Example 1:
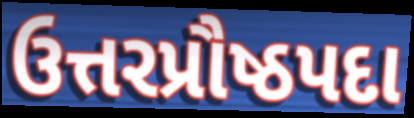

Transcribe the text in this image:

ઉત્તરપ્રૌષ્ઠપદા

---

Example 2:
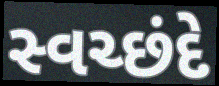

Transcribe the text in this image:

સ્વચ્છંદે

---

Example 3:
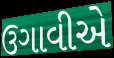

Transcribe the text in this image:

ઉગાવીએ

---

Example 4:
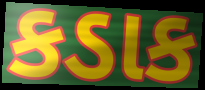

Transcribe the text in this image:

કડાક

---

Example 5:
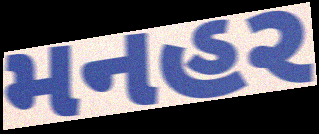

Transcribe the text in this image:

મનહર